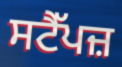
ਸਟੈੱਪਜ਼